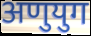
अणुयुग